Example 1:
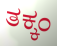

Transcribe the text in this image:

ತಕ್ಕಂ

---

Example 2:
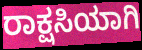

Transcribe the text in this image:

ರಾಕ್ಷಸಿಯಾಗಿ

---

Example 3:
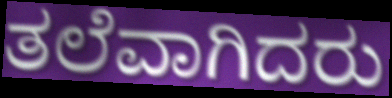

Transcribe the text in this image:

ತಲೆವಾಗಿದರು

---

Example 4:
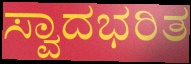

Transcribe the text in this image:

ಸ್ವಾದಭರಿತ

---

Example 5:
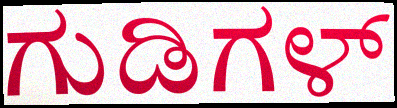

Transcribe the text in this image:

ಗುಡಿಗಳ್